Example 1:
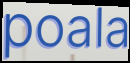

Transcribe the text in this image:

poala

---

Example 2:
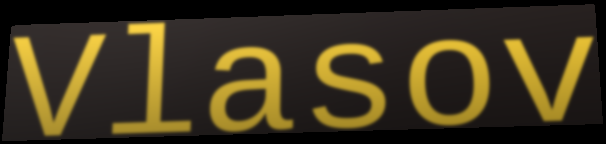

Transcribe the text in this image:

Vlasov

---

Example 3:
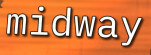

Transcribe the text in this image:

midway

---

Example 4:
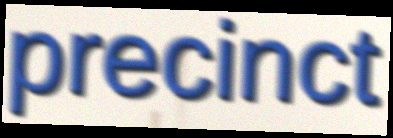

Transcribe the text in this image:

precinct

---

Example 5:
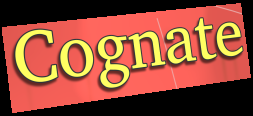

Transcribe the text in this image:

Cognate